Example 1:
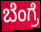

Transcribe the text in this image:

ಬೆಂಗ್ರೆ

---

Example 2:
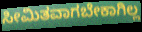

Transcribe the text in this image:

ಸೀಮಿತವಾಗಬೇಕಾಗಿಲ್ಲ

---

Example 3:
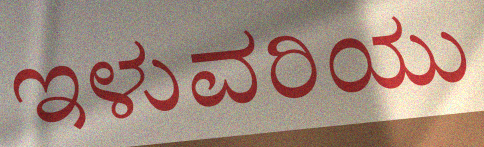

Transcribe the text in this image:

ಇಳುವರಿಯು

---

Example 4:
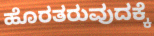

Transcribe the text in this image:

ಹೊರತರುವುದಕ್ಕೆ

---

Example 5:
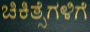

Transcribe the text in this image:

ಚಿಕಿತ್ಸೆಗಳಿಗೆ